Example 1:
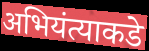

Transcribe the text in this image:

अभियंत्याकडे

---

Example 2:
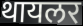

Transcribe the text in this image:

थायलर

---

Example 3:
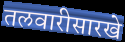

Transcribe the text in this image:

तलवारीसारखे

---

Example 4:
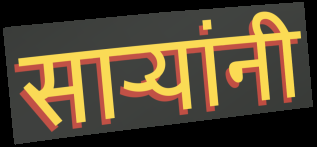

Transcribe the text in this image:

साऱ्यांनी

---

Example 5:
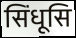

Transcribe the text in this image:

सिंधूसि